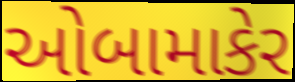
ઓબામાકેર